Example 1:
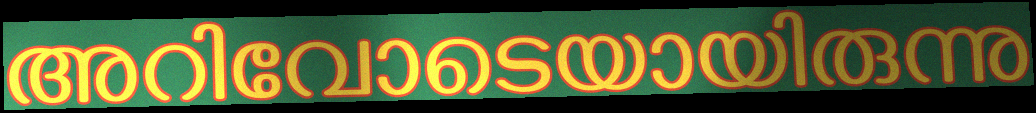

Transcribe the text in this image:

അറിവോടെയായിരുന്നു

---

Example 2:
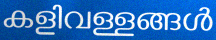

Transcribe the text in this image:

കളിവള്ളങ്ങൾ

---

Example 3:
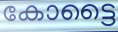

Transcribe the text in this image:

കോട്ടൈ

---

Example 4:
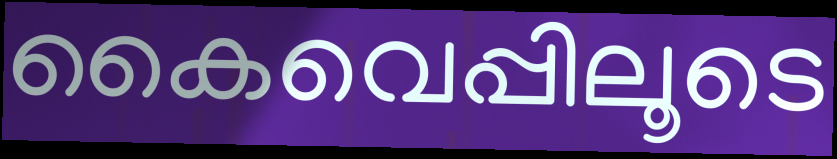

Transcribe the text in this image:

കൈവെപ്പിലൂടെ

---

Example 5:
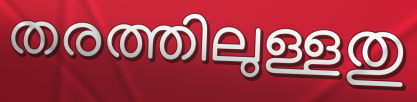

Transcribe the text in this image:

തരത്തിലുള്ളതു